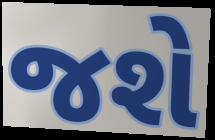
જશે